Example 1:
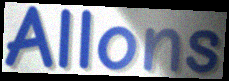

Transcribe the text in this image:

Allons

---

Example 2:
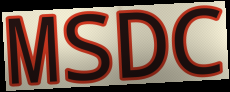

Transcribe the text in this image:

MSDC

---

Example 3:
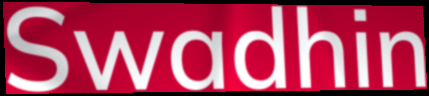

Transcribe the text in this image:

Swadhin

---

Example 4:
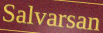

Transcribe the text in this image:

Salvarsan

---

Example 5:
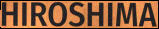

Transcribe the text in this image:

HIROSHIMA